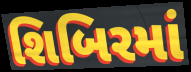
શિબિરમાં